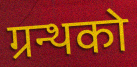
ग्रन्थको